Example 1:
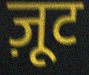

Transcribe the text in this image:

ज़ूट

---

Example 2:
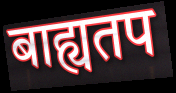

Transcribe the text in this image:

बाह्यतप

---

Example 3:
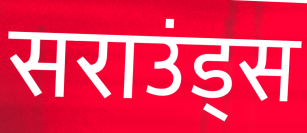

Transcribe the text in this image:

सराउंड्स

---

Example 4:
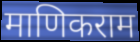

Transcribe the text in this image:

माणिकराम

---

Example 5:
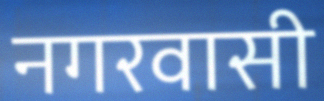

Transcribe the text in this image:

नगरवासी